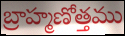
బ్రాహ్మణోత్తము